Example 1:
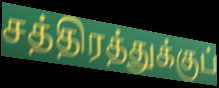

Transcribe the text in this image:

சத்திரத்துக்குப்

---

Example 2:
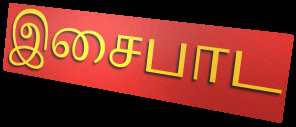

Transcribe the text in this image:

இசைபாட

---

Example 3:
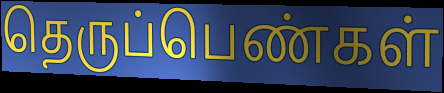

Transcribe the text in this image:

தெருப்பெண்கள்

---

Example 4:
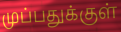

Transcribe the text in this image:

முப்பதுக்குள்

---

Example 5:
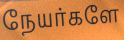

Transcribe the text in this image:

நேயர்களே